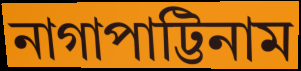
নাগাপাট্টিনাম